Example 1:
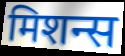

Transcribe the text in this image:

मिशन्स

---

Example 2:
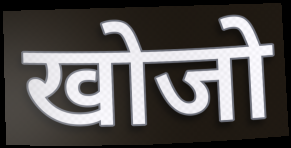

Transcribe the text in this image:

खोजो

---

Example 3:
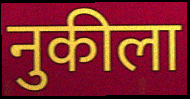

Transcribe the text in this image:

नुकीला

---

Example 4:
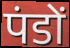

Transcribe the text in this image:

पंडों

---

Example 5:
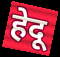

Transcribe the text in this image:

हेदू